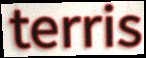
terris